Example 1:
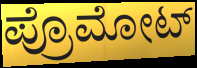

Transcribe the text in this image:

ಪ್ರೊಮೋಟ್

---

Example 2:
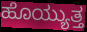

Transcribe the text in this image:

ಹೊಯ್ಯುತ್ತ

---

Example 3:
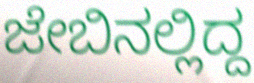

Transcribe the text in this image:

ಜೇಬಿನಲ್ಲಿದ್ದ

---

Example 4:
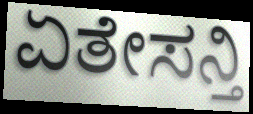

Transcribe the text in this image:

ಏತೇಸನ್ತಿ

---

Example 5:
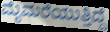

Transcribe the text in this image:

ಮೈಮರೆಯುತ್ತಿದ್ದೆ